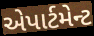
એપાર્ટમેન્ટ